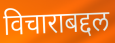
विचाराबद्दल